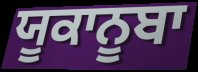
ਯੂਕਾਨੂਬਾ